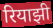
रियाझी